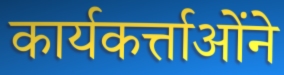
कार्यकर्त्ताओंने